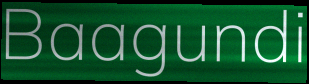
Baagundi